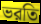
ভরতি